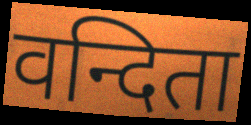
वन्दिता